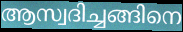
ആസ്വദിച്ചങ്ങിനെ